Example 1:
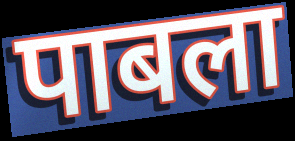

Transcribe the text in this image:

पाबला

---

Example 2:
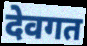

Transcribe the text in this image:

देवगत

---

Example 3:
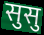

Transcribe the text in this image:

सुसु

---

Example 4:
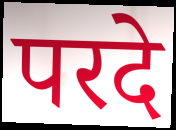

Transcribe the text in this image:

परदे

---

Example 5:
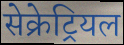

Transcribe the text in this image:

सेक्रेट्रियल